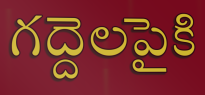
గద్దెలపైకి